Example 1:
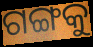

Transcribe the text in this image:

ଗଙ୍ଗକୁ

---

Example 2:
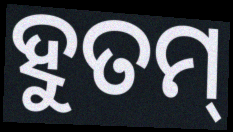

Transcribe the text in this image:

ହୁତମ୍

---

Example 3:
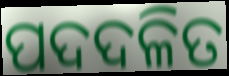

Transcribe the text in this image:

ପଦଦଳିତ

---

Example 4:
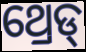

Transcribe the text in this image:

ଥ୍ରେଡ୍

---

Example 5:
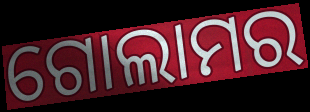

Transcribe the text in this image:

ଗୋଲାମର